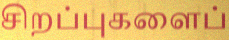
சிறப்புகளைப்